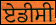
ਏਡੀਸੀ